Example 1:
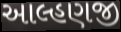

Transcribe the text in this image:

આલ્હણજી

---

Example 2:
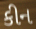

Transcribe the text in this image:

કીન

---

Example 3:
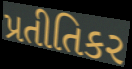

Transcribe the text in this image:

પ્રતીતિકર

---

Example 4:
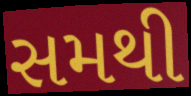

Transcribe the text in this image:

સમથી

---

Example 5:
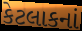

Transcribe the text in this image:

કેટલાકનાં